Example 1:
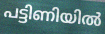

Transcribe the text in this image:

പട്ടിണിയിൽ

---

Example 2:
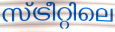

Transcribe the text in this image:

സ്ട്രീറ്റിലെ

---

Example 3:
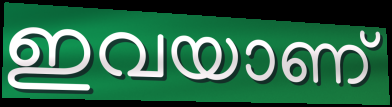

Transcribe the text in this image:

ഇവയാണ്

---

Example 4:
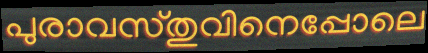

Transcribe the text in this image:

പുരാവസ്തുവിനെപ്പോലെ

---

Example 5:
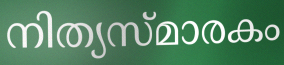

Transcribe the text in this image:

നിത്യസ്മാരകം